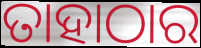
ତାହାଠାର